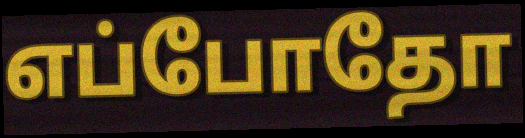
எப்போதோ